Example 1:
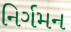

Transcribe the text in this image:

નિર્ગમન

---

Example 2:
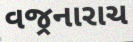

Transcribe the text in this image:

વજ્રનારાચ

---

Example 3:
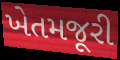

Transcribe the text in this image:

ખેતમજૂરી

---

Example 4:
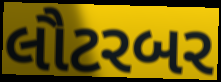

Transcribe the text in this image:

લૌટરબર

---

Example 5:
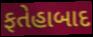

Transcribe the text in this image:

ફતેહાબાદ